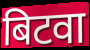
बिटवा